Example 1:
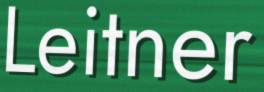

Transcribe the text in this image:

Leitner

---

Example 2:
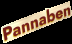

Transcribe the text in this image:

Pannaben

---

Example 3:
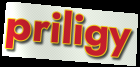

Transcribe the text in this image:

priligy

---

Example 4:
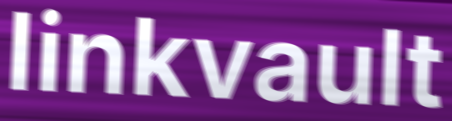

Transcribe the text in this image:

linkvault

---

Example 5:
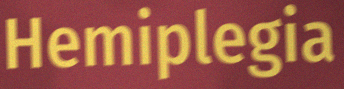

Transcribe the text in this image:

Hemiplegia